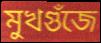
মুখগুঁজে